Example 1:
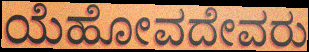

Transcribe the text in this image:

ಯೆಹೋವದೇವರು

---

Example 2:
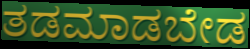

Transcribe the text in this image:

ತಡಮಾಡಬೇಡ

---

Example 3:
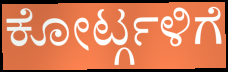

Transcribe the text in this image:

ಕೋರ್ಟ್ಗಳಿಗೆ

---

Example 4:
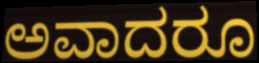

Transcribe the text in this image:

ಅವಾದರೂ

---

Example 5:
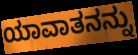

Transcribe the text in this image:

ಯಾವಾತನನ್ನು